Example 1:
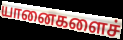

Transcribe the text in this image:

யானைகளைச்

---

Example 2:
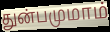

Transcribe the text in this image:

துன்பமுமாம்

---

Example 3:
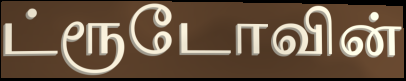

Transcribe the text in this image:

ட்ரூடோவின்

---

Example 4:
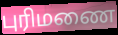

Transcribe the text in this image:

புரிமணை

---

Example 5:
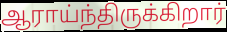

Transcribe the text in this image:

ஆராய்ந்திருக்கிறார்